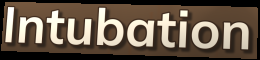
Intubation